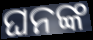
ଘନଙ୍କ